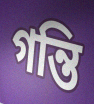
গন্তি